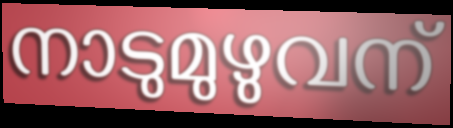
നാടുമുഴുവന്